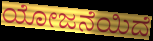
ಯೋಜನೆಯಿದೆ